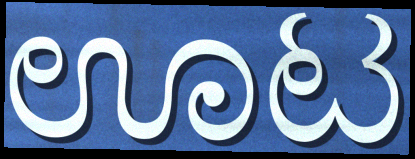
ಊಟ